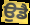
ਉਡੈ